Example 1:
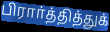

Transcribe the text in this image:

பிரார்த்தித்துக்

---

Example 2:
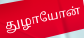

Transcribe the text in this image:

துழாயோன்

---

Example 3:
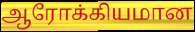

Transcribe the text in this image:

ஆரோக்கியமான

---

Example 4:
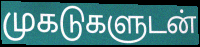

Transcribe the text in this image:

முகடுகளுடன்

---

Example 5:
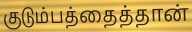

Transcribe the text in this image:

குடும்பத்தைத்தான்